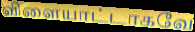
விளையாட்டாகவே